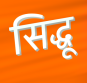
सिद्धू